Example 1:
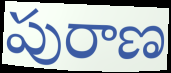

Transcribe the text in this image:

పురాణ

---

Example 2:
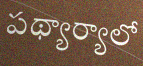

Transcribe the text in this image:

పథ్యార్యాలో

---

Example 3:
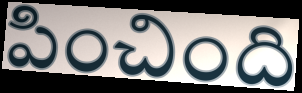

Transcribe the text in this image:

పించింది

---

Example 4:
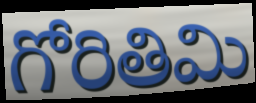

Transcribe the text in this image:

గోరితిమి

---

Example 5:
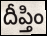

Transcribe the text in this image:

దీప్తిం